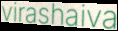
virashaiva